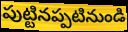
పుట్టినప్పటినుండి